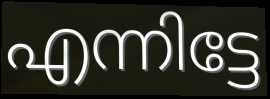
എന്നിട്ടേ